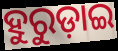
ହୁରୁଡ଼ାଇ